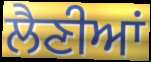
ਲੈਣੀਆਂ